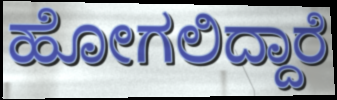
ಹೋಗಲಿದ್ದಾರೆ